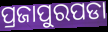
ପ୍ରଜାପୁରପଡା